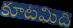
కూటమిది